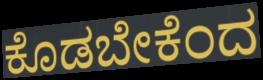
ಕೊಡಬೇಕೆಂದ